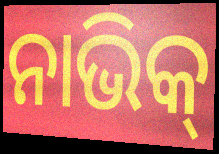
ନାଭିକ୍